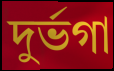
দুর্ভগা